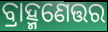
ବ୍ରାହ୍ମଣେତ୍ତର